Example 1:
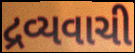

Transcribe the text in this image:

દ્રવ્યવાચી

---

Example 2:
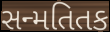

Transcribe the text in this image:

સન્મતિતક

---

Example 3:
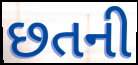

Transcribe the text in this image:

છતની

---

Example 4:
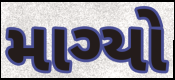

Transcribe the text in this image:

માગ્યો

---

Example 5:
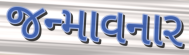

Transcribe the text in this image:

જન્માવનાર